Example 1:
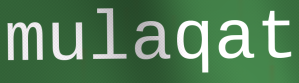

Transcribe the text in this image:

mulaqat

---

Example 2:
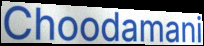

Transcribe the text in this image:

Choodamani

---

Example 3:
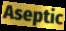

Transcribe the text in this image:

Aseptic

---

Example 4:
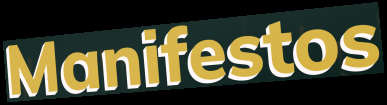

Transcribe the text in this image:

Manifestos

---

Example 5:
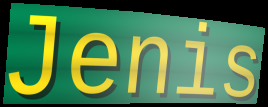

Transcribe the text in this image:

Jenis